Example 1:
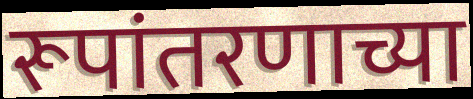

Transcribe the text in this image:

रूपांतरणाच्या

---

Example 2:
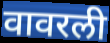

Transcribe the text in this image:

वावरली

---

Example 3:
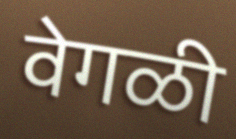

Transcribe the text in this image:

वेगळी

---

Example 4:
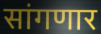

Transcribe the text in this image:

सांगणार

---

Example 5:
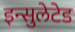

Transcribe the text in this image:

इन्सुलेटेड